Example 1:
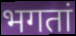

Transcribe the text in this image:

भगतां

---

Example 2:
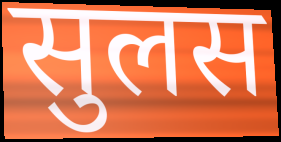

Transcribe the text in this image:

सुलस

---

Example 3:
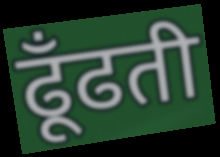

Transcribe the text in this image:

ढूँढती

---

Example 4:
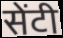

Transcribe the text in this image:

सेंटी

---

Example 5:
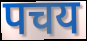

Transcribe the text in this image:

पचय